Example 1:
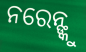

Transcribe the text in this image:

ନରେନ୍ଙ୍କୁ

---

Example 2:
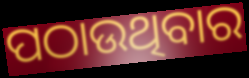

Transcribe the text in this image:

ପଠାଉଥିବାର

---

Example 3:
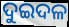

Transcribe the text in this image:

ଦୁଇଦଳ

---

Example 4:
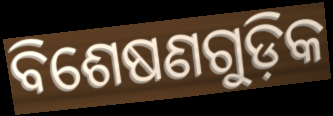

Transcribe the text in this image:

ବିଶେଷଣଗୁଡ଼ିକ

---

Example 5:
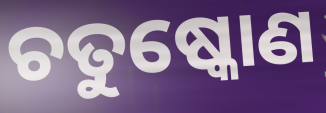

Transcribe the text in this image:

ଚତୁଷ୍କୋଣ